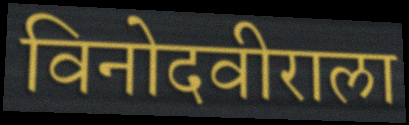
विनोदवीराला